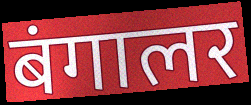
बंगालर